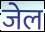
जेल